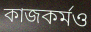
কাজকর্মও